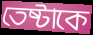
তেষ্টাকে